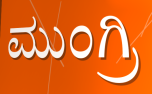
ಮುಂಗ್ರಿ